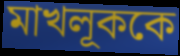
মাখলূককে